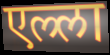
एल्ला